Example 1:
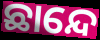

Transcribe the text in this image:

ଛାନ୍ଦେ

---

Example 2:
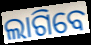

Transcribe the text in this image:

ଲାଗିବେ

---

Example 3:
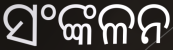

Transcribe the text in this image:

ସଂଙ୍କଳନ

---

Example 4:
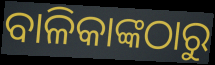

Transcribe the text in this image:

ବାଳିକାଙ୍କଠାରୁ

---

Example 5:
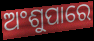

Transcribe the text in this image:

ଅଂଶୁପାରେ